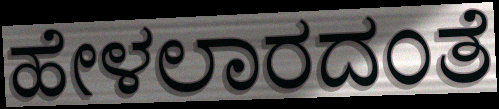
ಹೇಳಲಾರದಂತೆ